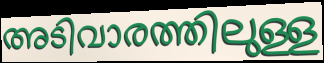
അടിവാരത്തിലുള്ള